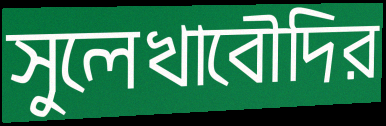
সুলেখাবৌদির